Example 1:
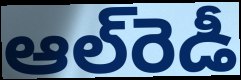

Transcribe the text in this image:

ఆల్‌రెడీ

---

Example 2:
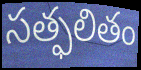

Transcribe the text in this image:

సత్ఫలితం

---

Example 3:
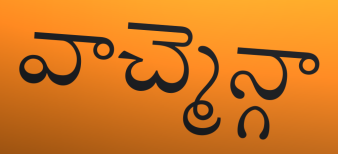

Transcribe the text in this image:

వాచ్మెన్గా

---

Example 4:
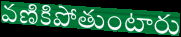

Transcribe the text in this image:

వణికిపోతుంటారు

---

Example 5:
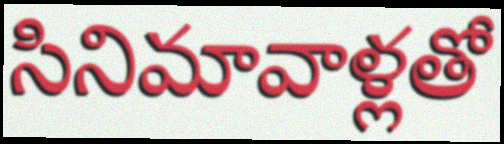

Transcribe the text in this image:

సినిమావాళ్లతో